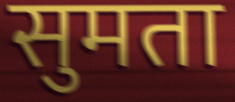
सुमता